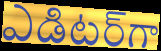
ఎడిటర్‌గా